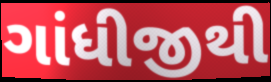
ગાંધીજીથી